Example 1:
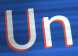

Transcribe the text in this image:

Un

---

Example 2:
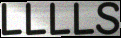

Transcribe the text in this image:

LLLLS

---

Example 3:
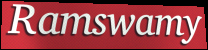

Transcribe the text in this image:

Ramswamy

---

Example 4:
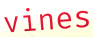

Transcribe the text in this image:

vines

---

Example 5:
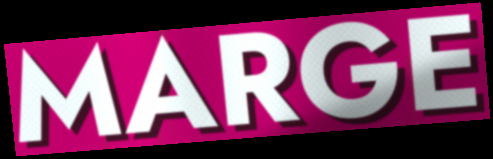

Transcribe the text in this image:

MARGE